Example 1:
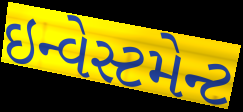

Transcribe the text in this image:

ઇન્વેસ્ટમેન્ટ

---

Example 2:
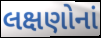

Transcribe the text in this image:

લક્ષણોનાં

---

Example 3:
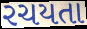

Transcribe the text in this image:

રચયતા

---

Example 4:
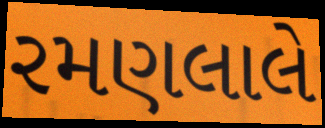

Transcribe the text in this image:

રમણલાલે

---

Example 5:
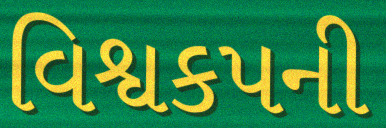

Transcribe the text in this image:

વિશ્વકપની